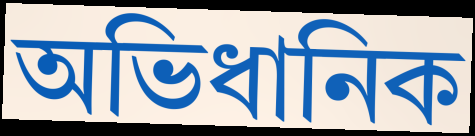
অভিধানিক